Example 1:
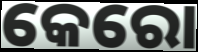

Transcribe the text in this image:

କେରୋ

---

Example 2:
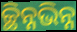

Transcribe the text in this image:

ଚ୍ଛିନ୍ନଭିନ୍ନ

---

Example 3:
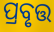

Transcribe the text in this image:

ପ୍ରବୃତ୍ତ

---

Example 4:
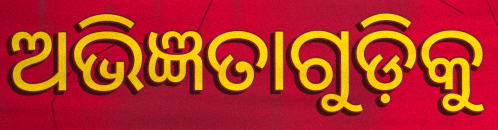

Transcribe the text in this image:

ଅଭିଜ୍ଞତାଗୁଡ଼ିକୁ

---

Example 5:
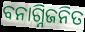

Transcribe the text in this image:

ବନାଗ୍ନିଜନିତ